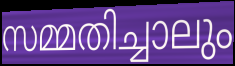
സമ്മതിച്ചാലും